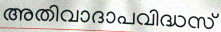
അതിവാദാപവിദ്ധസ്